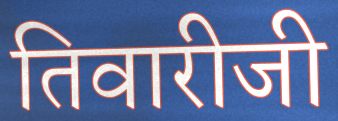
तिवारीजी